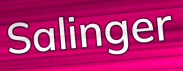
Salinger